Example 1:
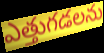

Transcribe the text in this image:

ఎత్తుగడలను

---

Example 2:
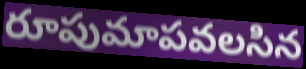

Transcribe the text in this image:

రూపుమాపవలసిన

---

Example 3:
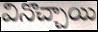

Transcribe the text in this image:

వినొచ్చాయి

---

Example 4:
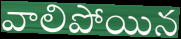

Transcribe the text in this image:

వాలిపోయిన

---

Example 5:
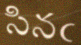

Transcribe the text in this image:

సినఁ